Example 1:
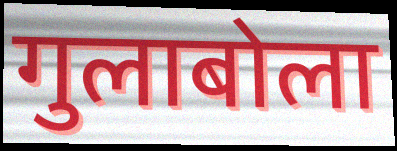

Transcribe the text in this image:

गुलाबोला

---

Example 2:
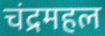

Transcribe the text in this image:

चंद्रमहल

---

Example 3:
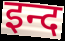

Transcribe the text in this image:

इन्द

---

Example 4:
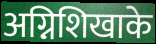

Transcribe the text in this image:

अग्निशिखाके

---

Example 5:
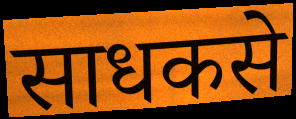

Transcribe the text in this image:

साधकसे